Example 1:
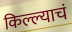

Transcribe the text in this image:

किल्ल्याचं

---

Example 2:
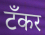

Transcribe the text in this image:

टँकर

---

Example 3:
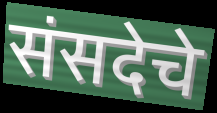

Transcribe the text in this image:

संसदेचे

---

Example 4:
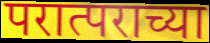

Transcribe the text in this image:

परात्पराच्या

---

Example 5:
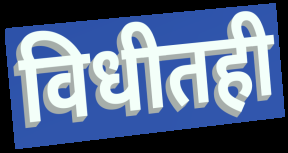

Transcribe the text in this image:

विधीतही